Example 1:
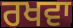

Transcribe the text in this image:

ਰਖਵਾ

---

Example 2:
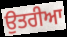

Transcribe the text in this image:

ਉਤਰੀਆ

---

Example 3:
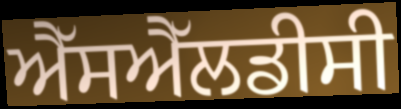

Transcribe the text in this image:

ਐੱਸਐੱਲਡੀਸੀ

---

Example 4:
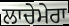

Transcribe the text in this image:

ਲਾਚੇਮੇਰਾ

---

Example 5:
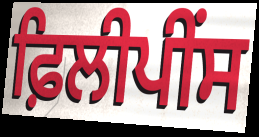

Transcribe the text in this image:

ਫ਼ਿਲੀਪੀਂਸ